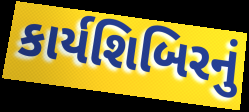
કાર્યશિબિરનું